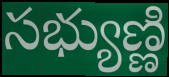
సభ్యుణ్ణి